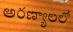
అరణ్యాలలో